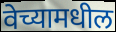
वेच्यामधील